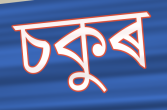
চকুৰ